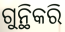
ଗୁନ୍ଥିକରି